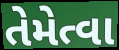
તેમેત્વા